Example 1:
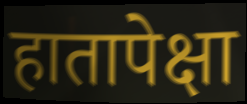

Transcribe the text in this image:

हातापेक्षा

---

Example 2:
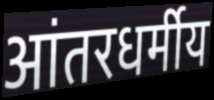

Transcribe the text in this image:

आंतरधर्मीय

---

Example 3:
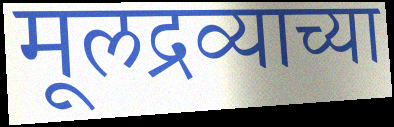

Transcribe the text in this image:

मूलद्रव्याच्या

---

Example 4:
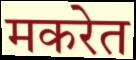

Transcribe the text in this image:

मकरेत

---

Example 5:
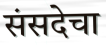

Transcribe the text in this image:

संसदेचा